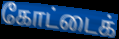
கோட்டைக்